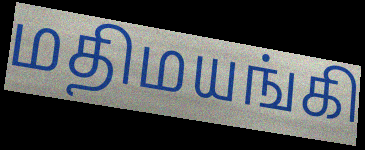
மதிமயங்கி